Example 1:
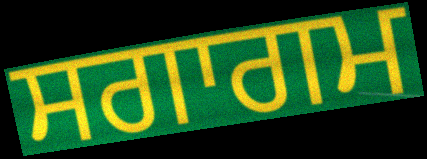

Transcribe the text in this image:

ਸਗਾਗਮ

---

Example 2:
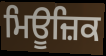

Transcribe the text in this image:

ਮਿਊਜ਼ਿਕ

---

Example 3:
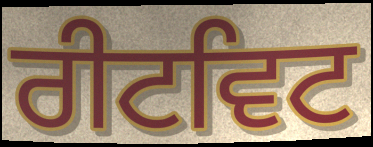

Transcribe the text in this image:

ਰੀਟਵਿਟ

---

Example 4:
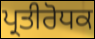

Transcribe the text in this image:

ਪ੍ਰਤੀਰੋਧਕ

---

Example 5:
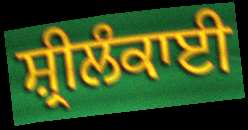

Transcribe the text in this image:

ਸ਼੍ਰੀਲੰਕਾਈ